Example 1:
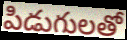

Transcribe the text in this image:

పిడుగులతో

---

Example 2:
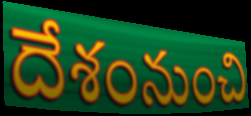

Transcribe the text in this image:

దేశంనుంచి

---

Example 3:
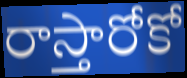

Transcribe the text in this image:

రాస్తారోకో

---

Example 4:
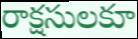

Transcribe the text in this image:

రాక్షసులకూ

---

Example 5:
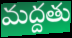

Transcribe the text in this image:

మద్దతు